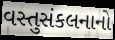
વસ્તુસંકલનાનો